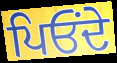
ਪਿਓਂਦੇ